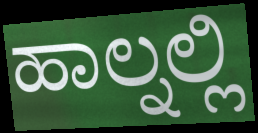
ಹಾಲ್ನಲ್ಲಿ